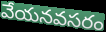
వేయనవసరం